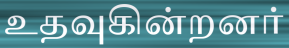
உதவுகின்றனர்